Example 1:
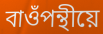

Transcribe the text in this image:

বাওঁপন্থীয়ে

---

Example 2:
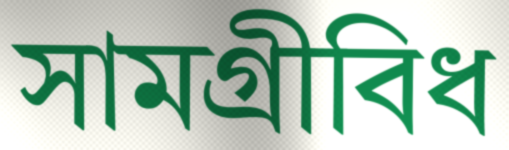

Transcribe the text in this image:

সামগ্ৰীবিধ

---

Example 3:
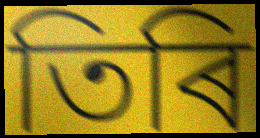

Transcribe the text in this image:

তিৰি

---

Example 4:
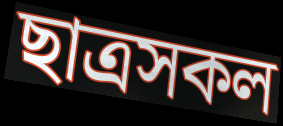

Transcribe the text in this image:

ছাত্ৰসকল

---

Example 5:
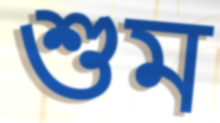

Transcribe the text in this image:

শুম